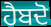
ਹੈਬਦੋ